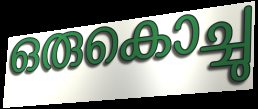
ഒരുകൊച്ചു